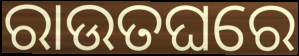
ରାଉତଘରେ